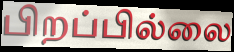
பிறப்பில்லை